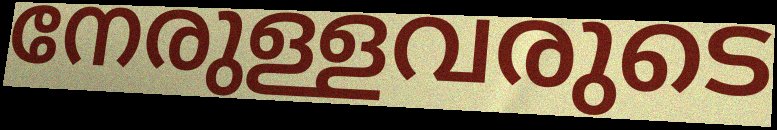
നേരുള്ളവരുടെ